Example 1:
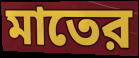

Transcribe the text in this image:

মাতের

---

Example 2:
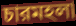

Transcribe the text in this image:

চারমহলা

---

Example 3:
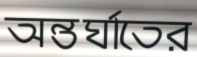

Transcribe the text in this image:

অন্তর্ঘাতের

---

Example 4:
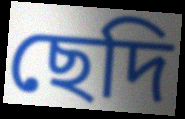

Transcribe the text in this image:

ছেদি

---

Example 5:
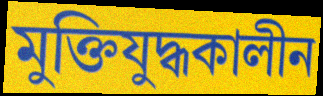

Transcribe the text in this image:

মুক্তিযুদ্ধকালীন